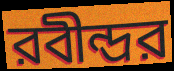
রবীন্দ্রর